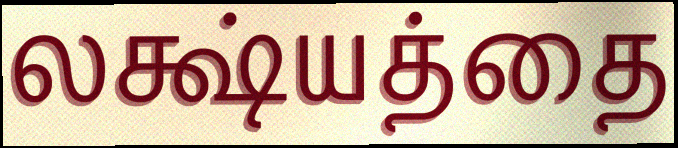
லக்ஷ்யத்தை